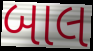
બાલ